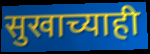
सुखाच्याही